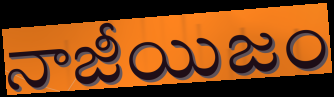
నాజీయిజం